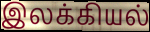
இலக்கியல்